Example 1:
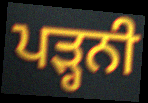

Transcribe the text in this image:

ਪੜ੍ਹਨੀ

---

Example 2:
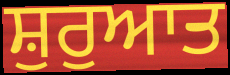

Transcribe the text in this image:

ਸ਼ੁਰੁਆਤ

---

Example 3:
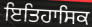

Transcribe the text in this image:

ਇਤਿਹਾਸਿਕ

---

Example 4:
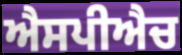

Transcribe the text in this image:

ਐਸਪੀਐਚ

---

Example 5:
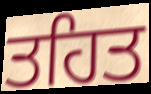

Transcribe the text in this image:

ਤਹਿਤ